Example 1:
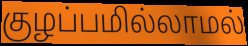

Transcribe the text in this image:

குழப்பமில்லாமல்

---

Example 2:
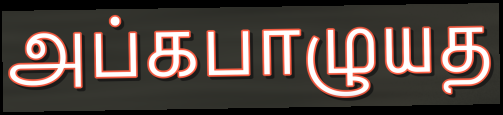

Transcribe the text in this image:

அப்கபாழுயத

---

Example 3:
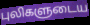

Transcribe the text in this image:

புலிகளுடைய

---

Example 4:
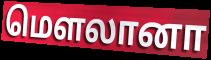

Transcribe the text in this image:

மௌலானா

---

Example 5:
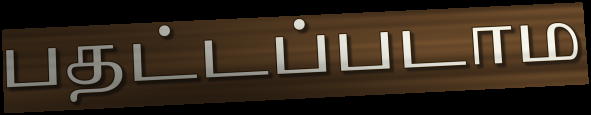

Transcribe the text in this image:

பதட்டப்படாம